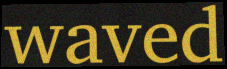
waved